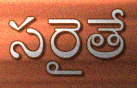
సరైతే